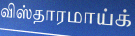
விஸ்தாரமாய்க்